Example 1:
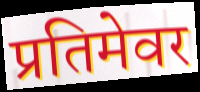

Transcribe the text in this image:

प्रतिमेवर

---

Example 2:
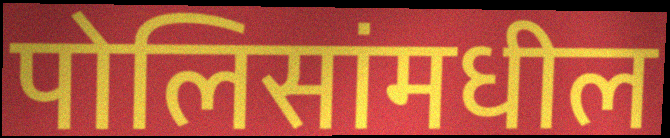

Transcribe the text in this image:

पोलिसांमधील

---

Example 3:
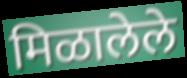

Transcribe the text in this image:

मिळालेले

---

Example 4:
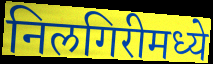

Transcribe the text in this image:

निलगिरीमध्ये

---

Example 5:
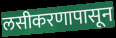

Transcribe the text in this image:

लसीकरणापासून